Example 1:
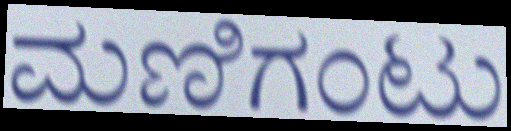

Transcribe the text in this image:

ಮಣಿಗಂಟು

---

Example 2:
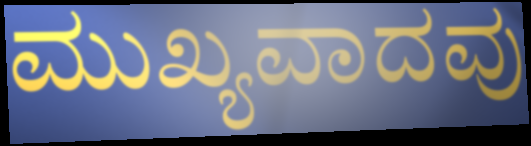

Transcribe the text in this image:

ಮುಖ್ಯವಾದವು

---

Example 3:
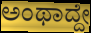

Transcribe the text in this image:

ಅಂಥಾದ್ದೇ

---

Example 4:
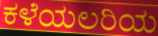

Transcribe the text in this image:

ಕಳೆಯಲರಿಯ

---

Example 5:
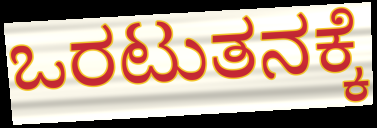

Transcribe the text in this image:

ಒರಟುತನಕ್ಕೆ